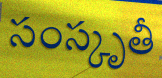
సంస్కృతీ